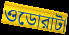
ওডোরাটা